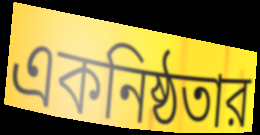
একনিষ্ঠতার